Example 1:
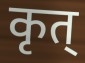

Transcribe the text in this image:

कृत्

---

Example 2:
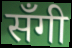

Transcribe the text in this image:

सँगी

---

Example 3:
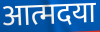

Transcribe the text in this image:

आत्मदया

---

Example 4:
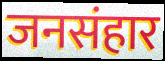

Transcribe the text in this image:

जनसंहार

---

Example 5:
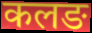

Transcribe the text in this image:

कलङ